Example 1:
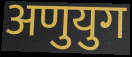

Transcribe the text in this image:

अणुयुग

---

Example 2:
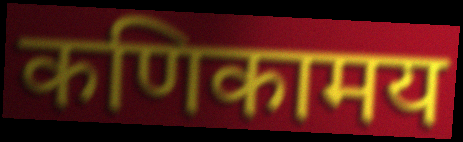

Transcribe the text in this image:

कणिकामय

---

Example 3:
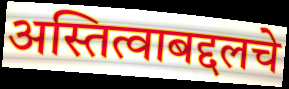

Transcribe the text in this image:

अस्तित्वाबद्दलचे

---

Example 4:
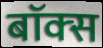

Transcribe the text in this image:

बॉक्‍स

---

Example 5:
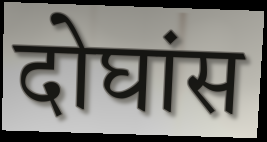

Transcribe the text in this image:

दोघांस